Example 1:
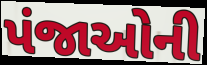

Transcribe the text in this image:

પંજાઓની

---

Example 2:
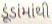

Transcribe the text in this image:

ડૂંડાંમાંથી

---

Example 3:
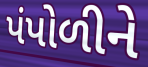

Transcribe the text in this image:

પંપોળીને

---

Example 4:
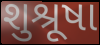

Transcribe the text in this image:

શુશ્રૂષા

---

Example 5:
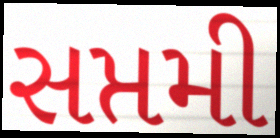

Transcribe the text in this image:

સપ્તમી